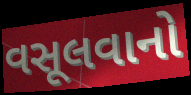
વસૂલવાનો